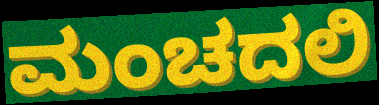
ಮಂಚದಲಿ